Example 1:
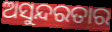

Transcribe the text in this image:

ଅସୁନ୍ଦରତାର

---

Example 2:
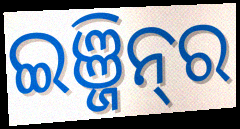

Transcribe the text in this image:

ଇଞ୍ଜିନ୍‌ର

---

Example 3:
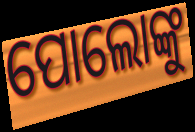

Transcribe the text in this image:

ପୋଲୋଙ୍କୁ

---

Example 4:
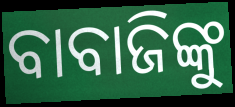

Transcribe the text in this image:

ବାବାଜିଙ୍କୁ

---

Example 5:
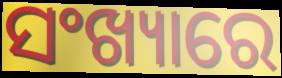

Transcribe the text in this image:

ସଂଖ୍ଯାରେ